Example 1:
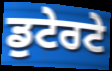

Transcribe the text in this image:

ਡੁਟੇਰਟੇ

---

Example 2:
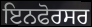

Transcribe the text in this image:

ਇਨਫੋਰਸਰ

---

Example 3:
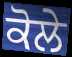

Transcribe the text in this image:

ਕੋਲੇ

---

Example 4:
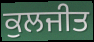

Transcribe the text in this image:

ਕੁਲਜੀਤ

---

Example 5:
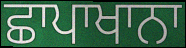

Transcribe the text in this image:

ਛਾਪਾਖਾਨਾ